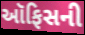
ઑફિસની